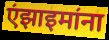
एंझाइमांना